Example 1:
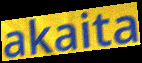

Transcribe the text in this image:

akaita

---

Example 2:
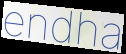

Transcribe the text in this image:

endha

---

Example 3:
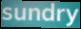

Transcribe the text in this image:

sundry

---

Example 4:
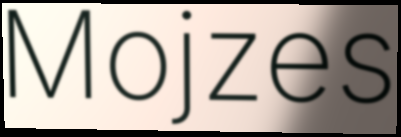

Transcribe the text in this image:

Mojzes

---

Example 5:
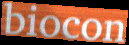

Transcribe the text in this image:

biocon